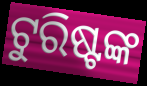
ଟୁରିଷ୍ଟଙ୍କ